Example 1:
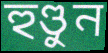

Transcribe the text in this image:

হুণ্ডুন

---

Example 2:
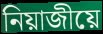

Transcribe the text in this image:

নিয়াজীয়ে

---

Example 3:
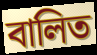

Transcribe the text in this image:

বালিত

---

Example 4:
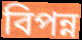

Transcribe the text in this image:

বিপন্ন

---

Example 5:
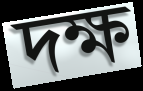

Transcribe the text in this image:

দক্ষ